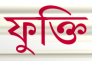
ফুক্তি